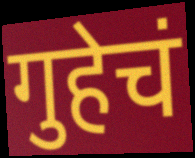
गुहेचं